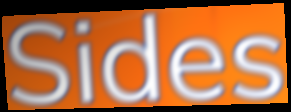
Sides